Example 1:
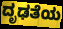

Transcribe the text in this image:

ದೃಢತೆಯ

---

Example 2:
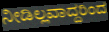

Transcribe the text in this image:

ನೀಡಿಲ್ಲವಾದ್ದರಿಂದ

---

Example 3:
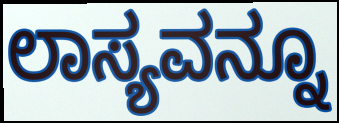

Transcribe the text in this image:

ಲಾಸ್ಯವನ್ನೂ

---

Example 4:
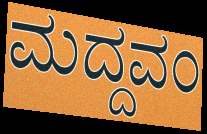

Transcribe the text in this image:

ಮದ್ದವಂ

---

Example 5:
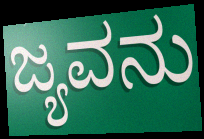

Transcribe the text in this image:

ಜ್ಯವನು